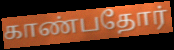
காண்பதோர்